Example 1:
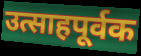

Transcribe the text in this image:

उत्साहपूर्वक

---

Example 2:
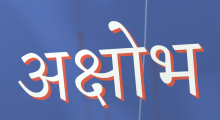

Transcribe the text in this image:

अक्षोभ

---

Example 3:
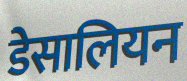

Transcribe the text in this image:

डेसालियन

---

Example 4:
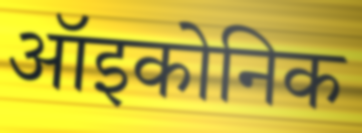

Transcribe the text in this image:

ऑइकोनिक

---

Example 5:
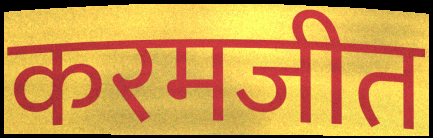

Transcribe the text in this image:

करमजीत